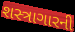
શસ્ત્રાગારની